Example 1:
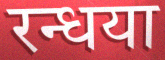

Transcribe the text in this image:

रन्धया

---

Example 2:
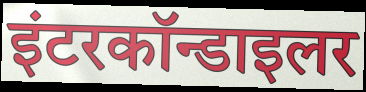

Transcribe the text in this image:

इंटरकॉन्डाइलर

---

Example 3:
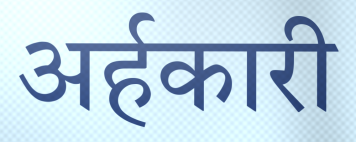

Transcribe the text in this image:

अर्हकारी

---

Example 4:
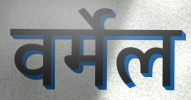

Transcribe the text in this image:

वर्मेल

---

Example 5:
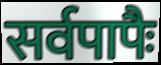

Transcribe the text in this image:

सर्वपापैः